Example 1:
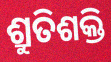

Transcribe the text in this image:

ଶ୍ରୁତିଶକ୍ତି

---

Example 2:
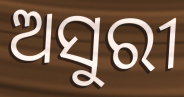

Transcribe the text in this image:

ଅସୁରୀ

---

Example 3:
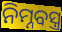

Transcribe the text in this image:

ନିମ୍ନବସ୍ତ୍ର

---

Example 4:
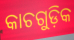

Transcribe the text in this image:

କାଚଗୁଡ଼ିକ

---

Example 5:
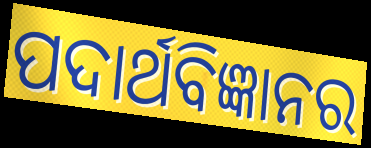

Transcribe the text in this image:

ପଦାର୍ଥବିଜ୍ଞାନର